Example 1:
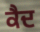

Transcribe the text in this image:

ਕੈਦ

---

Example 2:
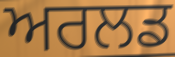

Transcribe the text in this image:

ਅਰਲਡ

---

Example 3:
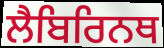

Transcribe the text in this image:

ਲੈਬਿਰਿਨਥ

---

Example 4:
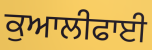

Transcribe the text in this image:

ਕੁਆਲੀਫਾਈ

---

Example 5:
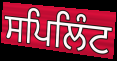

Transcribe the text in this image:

ਸਪਿਲਿੰਟ